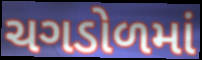
ચગડોળમાં